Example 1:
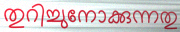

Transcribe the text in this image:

തുറിച്ചുനോക്കുന്നതു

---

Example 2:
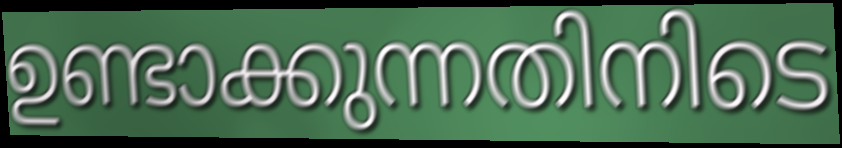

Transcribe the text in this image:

ഉണ്ടാക്കുന്നതിനിടെ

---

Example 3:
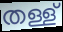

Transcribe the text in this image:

തള്ള്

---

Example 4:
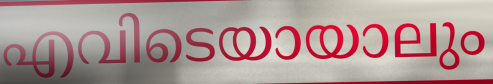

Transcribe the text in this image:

എവിടെയായാലും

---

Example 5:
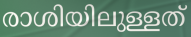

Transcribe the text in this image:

രാശിയിലുള്ളത്